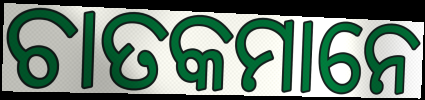
ଚାତକମାନେ